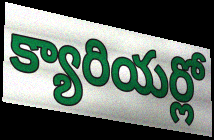
క్యారియర్లో